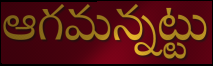
ఆగమన్నట్టు